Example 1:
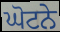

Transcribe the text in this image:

ਘੋਟਨੇ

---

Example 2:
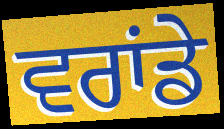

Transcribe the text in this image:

ਵਰਾਂਡੇ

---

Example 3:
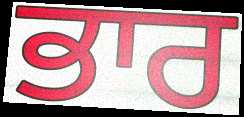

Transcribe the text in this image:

ਭਾਰ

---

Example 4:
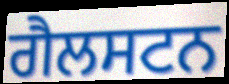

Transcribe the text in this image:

ਗੈਲਸਟਨ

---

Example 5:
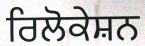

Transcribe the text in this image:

ਰਿਲੋਕੇਸ਼ਨ